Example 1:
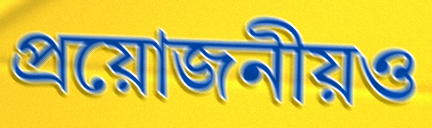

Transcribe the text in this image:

প্রয়োজনীয়ও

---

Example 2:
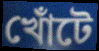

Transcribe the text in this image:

খোঁটে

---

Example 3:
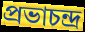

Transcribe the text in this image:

প্রভাচন্দ্র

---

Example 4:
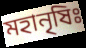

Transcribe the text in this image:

মহানৃষিঃ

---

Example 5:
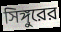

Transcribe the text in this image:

সিঙ্গুরের